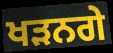
ਖੜਨਗੇ